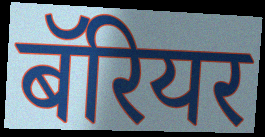
बॅरियर